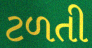
ટળતી